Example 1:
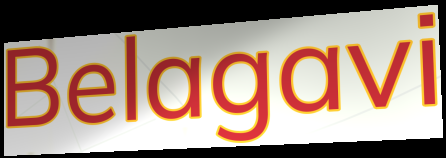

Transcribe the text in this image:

Belagavi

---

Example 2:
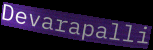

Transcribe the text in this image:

Devarapalli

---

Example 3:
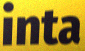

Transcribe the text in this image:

inta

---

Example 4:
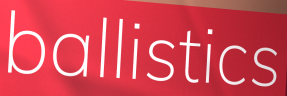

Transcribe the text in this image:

ballistics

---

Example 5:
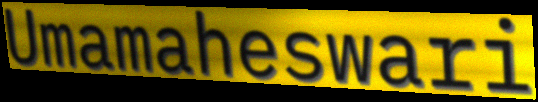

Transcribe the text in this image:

Umamaheswari